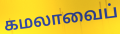
கமலாவைப்